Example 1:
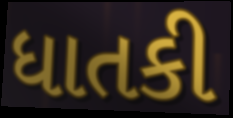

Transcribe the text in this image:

ધાતકી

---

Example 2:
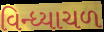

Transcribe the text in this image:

વિન્ધ્યાચળ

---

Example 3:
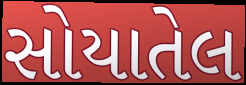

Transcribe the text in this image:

સોયાતેલ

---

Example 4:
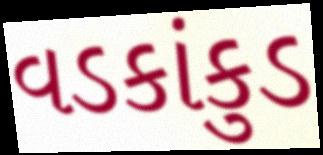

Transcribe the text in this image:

વડકાંકુડ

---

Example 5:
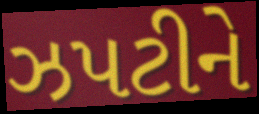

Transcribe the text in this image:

ઝપટીને